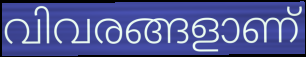
വിവരങ്ങളാണ്